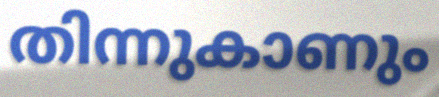
തിന്നുകാണും